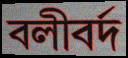
বলীবর্দ